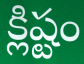
క్లిష్టం